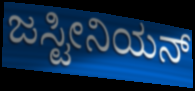
ಜಸ್ಟೀನಿಯನ್